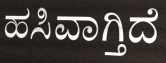
ಹಸಿವಾಗ್ತಿದೆ